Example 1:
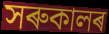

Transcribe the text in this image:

সৰুকালৰ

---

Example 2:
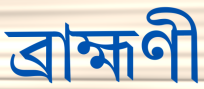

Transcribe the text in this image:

ব্ৰাহ্মণী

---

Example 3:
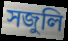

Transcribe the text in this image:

সজুলি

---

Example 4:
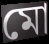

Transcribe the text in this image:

মো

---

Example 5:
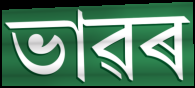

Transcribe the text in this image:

ভাৱৰ